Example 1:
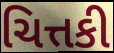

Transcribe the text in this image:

ચિત્તકી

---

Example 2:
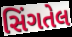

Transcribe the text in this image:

સિંગતેલ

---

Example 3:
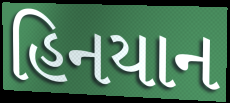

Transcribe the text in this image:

હિનયાન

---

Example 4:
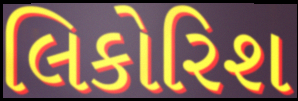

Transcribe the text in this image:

લિકોરિશ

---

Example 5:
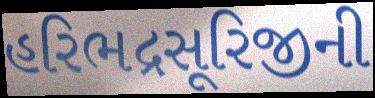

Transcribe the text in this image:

હરિભદ્રસૂરિજીની